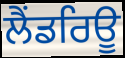
ਲੈਂਡਰਿਊ